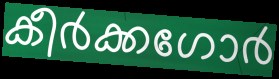
കീർക്കഗോർ